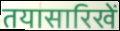
तयासारिखें